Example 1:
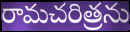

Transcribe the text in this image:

రామచరిత్రను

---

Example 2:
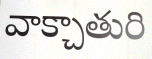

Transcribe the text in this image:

వాక్చాతురి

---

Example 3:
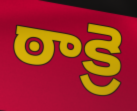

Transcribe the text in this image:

ఠాక్రె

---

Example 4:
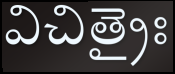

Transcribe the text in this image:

విచిత్రైః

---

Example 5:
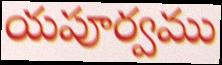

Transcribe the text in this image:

యపూర్వము